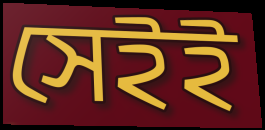
সেইই